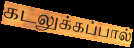
கடலுக்கப்பால்